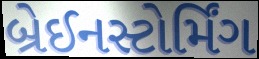
બ્રેઈનસ્ટોર્મિંગ